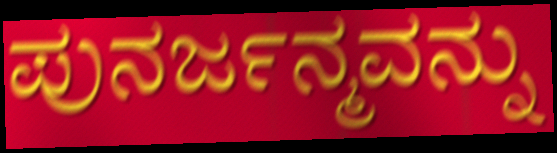
ಪುನರ್ಜನ್ಮವನ್ನು